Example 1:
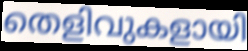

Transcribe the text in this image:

തെളിവുകളായി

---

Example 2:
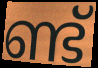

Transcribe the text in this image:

ണ്ട്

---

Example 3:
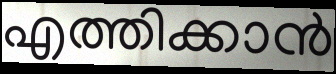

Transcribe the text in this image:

എത്തിക്കാൻ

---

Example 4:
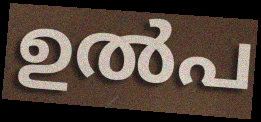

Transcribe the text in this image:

ഉൽപ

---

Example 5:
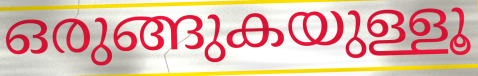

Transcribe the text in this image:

ഒരുങ്ങുകയുള്ളൂ